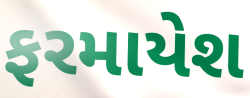
ફરમાયેશ